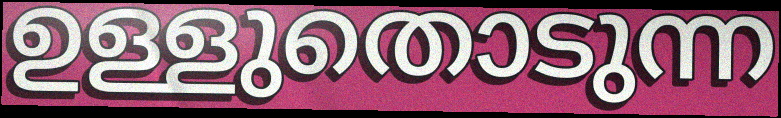
ഉള്ളുതൊടുന്ന